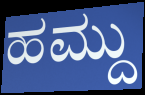
ಹಮ್ದು